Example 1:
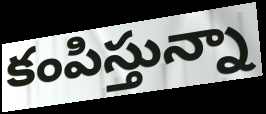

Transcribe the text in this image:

కంపిస్తున్నా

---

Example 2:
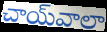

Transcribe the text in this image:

చాయ్‌వాలా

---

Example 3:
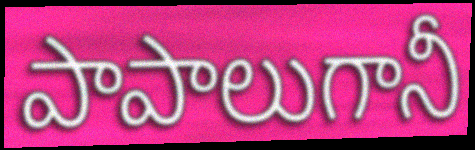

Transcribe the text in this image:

పాపాలుగానీ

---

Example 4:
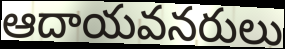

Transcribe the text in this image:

ఆదాయవనరులు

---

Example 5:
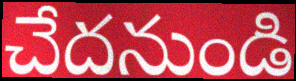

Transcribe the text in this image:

చేదనుండి